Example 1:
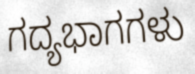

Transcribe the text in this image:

ಗದ್ಯಭಾಗಗಳು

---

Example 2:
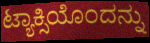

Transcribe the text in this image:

ಟ್ಯಾಕ್ಸಿಯೊಂದನ್ನು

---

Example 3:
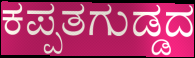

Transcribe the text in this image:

ಕಪ್ಪತಗುಡ್ಡದ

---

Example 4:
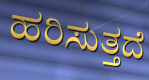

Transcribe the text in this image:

ಹರಿಸುತ್ತದೆ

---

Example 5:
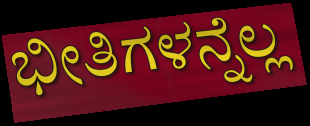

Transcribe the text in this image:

ಭೀತಿಗಳನ್ನೆಲ್ಲ